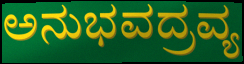
ಅನುಭವದ್ರವ್ಯ